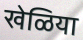
खेळिया